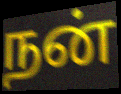
நன்